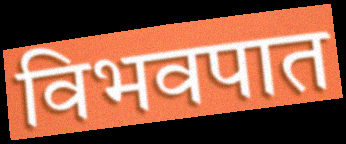
विभवपात